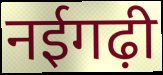
नईगढ़ी